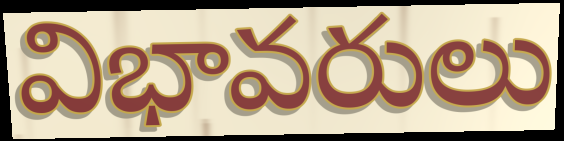
విభావరులు